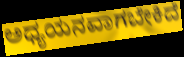
ಅಧ್ಯಯನವಾಗಬೇಕಿದೆ